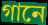
গানে